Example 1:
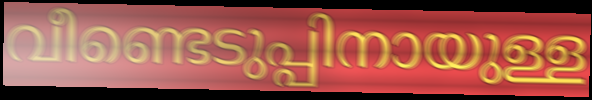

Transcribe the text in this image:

വീണ്ടെടുപ്പിനായുള്ള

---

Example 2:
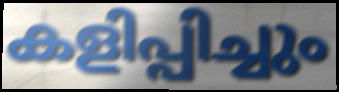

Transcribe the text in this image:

കളിപ്പിച്ചും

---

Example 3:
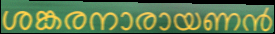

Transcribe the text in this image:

ശങ്കരനാരായണൻ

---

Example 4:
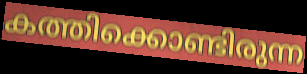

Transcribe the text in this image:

കത്തിക്കൊണ്ടിരുന്ന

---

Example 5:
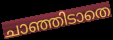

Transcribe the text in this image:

ചാഞ്ഞിടാതെ